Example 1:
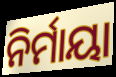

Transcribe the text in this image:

ନିର୍ମାୟା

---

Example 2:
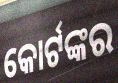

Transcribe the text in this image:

କୋର୍ଟଙ୍କର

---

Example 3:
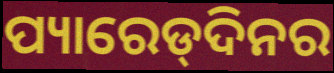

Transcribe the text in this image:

ପ୍ୟାରେଡ୍‌ଦିନର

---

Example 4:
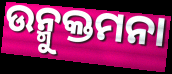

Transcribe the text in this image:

ଉନ୍ମୁକ୍ତମନା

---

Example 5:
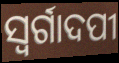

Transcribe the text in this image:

ସ୍ବର୍ଗାଦପୀ